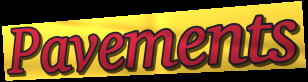
Pavements